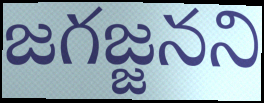
జగజ్జనని